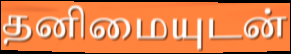
தனிமையுடன்